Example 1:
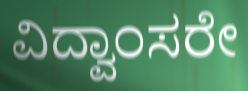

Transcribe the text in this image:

ವಿದ್ವಾಂಸರೇ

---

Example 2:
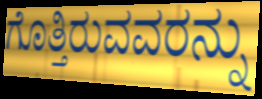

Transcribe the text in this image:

ಗೊತ್ತಿರುವವರನ್ನು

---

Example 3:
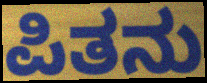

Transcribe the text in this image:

ಪಿತನು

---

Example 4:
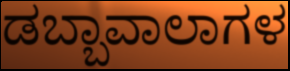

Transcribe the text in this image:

ಡಬ್ಬಾವಾಲಾಗಳ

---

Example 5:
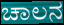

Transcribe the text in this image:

ಚಾಲನ